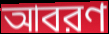
আবরণ